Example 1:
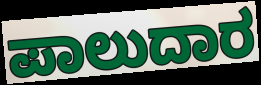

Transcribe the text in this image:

ಪಾಲುದಾರ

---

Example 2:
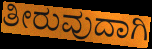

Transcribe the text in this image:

ತೀರುವುದಾಗಿ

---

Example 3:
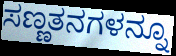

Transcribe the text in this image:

ಸಣ್ಣತನಗಳನ್ನೂ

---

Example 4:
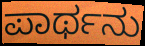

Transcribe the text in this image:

ಪಾರ್ಥನು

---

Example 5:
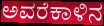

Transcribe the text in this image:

ಅವರೆಕಾಳಿನ